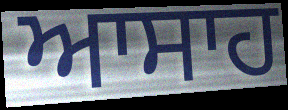
ਆਸਾਹ